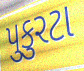
પુકુરટા